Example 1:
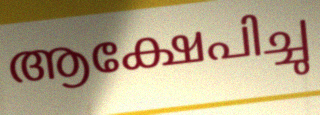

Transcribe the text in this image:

ആക്ഷേപിച്ചു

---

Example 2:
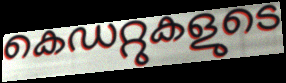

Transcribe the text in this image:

കെഡറ്റുകളുടെ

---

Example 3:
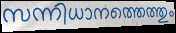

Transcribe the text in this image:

സന്നിധാനത്തെത്തും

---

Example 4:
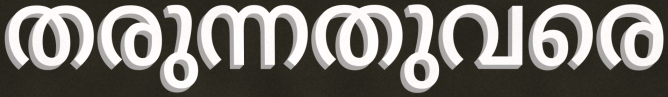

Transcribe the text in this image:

തരുന്നതുവരെ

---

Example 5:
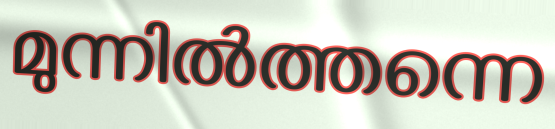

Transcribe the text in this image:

മുന്നിൽത്തന്നെ